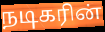
நடிகரின்